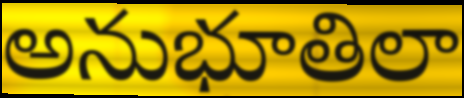
అనుభూతిలా